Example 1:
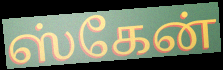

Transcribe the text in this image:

ஸ்கேன்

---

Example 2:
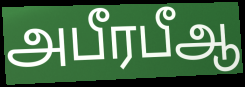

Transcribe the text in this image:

அபீரபீஆ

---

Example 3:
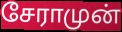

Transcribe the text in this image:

சேராமுன்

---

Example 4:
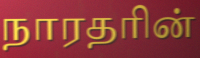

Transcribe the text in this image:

நாரதரின்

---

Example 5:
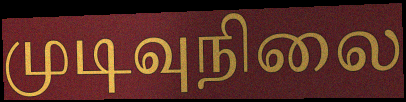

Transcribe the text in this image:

முடிவுநிலை